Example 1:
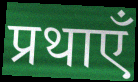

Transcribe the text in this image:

प्रथाएँ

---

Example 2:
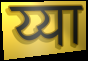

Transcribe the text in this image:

य्या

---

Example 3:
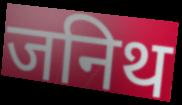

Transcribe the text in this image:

जनिथ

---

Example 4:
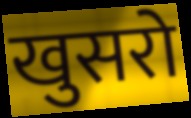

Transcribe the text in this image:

खुसरो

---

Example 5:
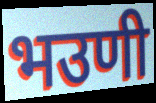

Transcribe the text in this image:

भउणी